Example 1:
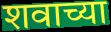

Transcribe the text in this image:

शवाच्या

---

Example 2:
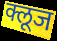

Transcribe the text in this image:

क्लूज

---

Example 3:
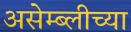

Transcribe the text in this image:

असेम्ब्लीच्या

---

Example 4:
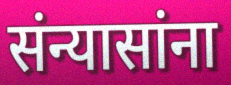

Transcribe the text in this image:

संन्यासांना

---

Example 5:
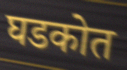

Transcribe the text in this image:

घडकोत